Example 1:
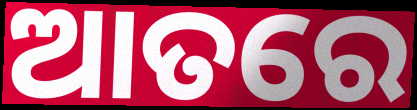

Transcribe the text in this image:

ଆତରେ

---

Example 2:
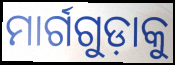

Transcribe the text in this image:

ମାର୍ଗଗୁଡ଼ାକୁ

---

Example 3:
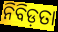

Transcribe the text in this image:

ନିବିଡ଼ତା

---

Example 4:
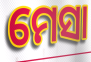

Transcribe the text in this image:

ମେସା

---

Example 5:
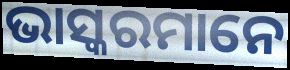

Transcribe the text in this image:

ଭାସ୍କରମାନେ